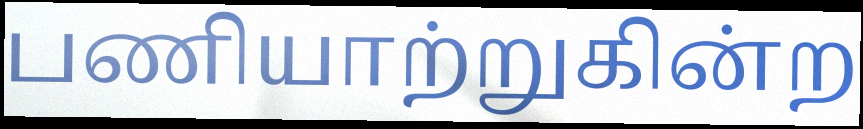
பணியாற்றுகின்ற